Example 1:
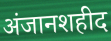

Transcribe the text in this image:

अंजानशहीद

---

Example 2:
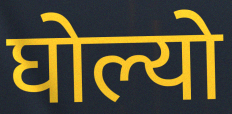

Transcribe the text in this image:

घोल्यो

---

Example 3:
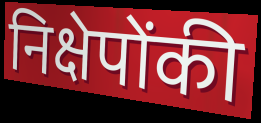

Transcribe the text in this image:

निक्षेपोंकी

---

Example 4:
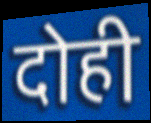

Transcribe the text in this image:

दोही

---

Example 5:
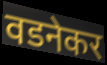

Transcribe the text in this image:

वडनेकर